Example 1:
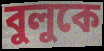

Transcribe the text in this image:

বুলুকে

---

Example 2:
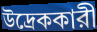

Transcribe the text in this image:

উদ্রেককারী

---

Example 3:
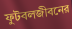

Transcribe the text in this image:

ফুটবলজীবনের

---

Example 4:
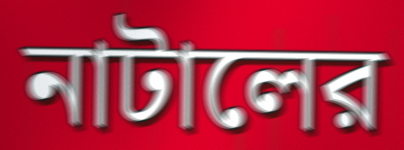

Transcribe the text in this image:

নাটালের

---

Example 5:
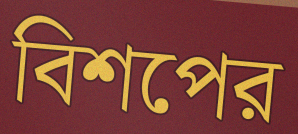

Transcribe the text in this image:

বিশপের